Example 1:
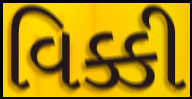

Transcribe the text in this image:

વિક્કી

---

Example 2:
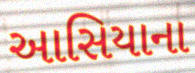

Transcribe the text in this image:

આસિયાના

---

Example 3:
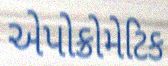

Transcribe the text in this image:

એપોક્રોમેટિક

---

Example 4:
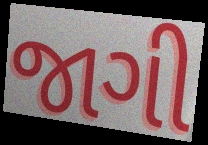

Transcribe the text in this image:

જાગી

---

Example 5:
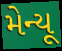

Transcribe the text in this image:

મેન્યૂ